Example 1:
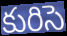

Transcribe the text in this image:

కురిసె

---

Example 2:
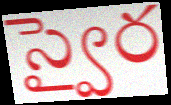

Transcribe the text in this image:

స్వైర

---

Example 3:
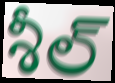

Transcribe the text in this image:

శీల్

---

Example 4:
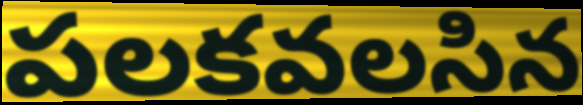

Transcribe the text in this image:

పలకవలసిన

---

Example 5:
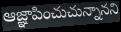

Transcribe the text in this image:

ఆజ్ఞాపించుచున్నానని